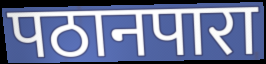
पठानपारा